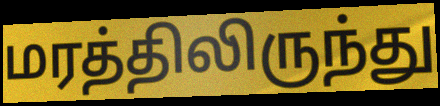
மரத்திலிருந்து